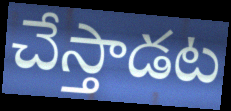
చేస్తాడట